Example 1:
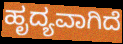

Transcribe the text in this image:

ಹೃದ್ಯವಾಗಿದೆ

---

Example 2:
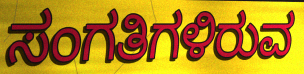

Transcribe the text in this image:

ಸಂಗತಿಗಳಿರುವ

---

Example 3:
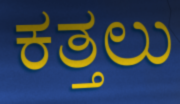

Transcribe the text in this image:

ಕತ್ತಲು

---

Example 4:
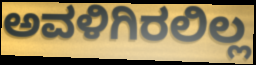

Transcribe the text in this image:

ಅವಳಿಗಿರಲಿಲ್ಲ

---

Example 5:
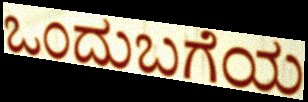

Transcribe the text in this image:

ಒಂದುಬಗೆಯ